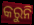
କରୁନି